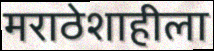
मराठेशाहीला